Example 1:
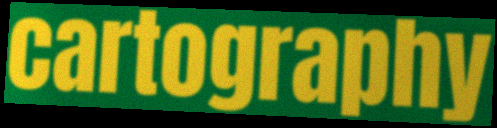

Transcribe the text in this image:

cartography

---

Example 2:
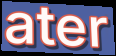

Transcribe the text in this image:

ater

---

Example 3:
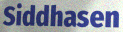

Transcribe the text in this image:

Siddhasen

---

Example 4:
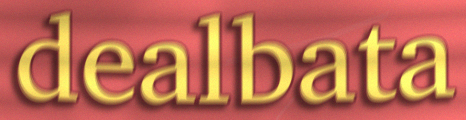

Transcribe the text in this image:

dealbata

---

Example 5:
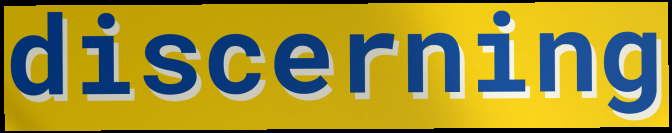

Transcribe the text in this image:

discerning